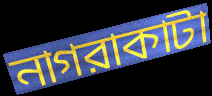
নাগরাকাটা